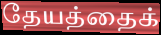
தேயத்தைக்